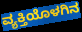
ವ್ಯಕ್ತಿಯೊಳಗಿನ